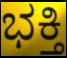
ಭಕ್ತಿ